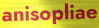
anisopliae